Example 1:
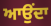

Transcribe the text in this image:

ਆਉੰਦਾ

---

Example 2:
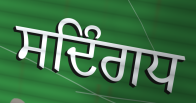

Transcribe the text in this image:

ਸਦਿੰਗਧ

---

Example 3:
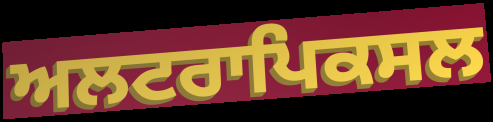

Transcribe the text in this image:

ਅਲਟਰਾਪਿਕਸਲ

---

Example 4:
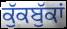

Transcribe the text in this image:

ਕੁੱਕਬੁੱਕਾਂ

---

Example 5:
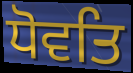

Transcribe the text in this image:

ਧੋਵਤਿ